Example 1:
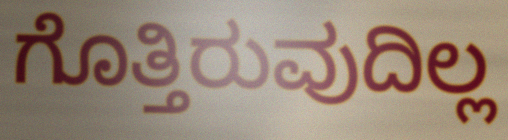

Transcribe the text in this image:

ಗೊತ್ತಿರುವುದಿಲ್ಲ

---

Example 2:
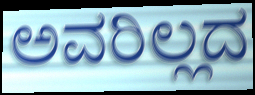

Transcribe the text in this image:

ಅವರಿಲ್ಲದ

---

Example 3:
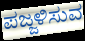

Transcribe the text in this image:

ಪಜ್ಜಳಿಸುವ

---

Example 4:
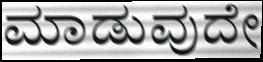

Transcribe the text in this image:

ಮಾಡುವುದೇ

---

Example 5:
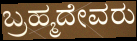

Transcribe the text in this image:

ಬ್ರಹ್ಮದೇವರು